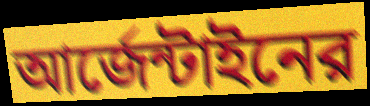
আর্জেন্টাইনের